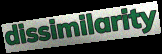
dissimilarity